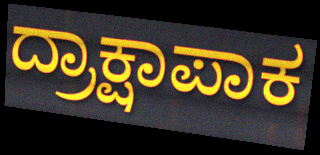
ದ್ರಾಕ್ಷಾಪಾಕ